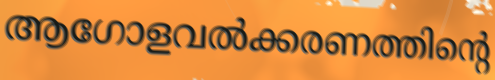
ആഗോളവൽക്കരണത്തിന്റെ